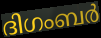
ദിഗംബർ